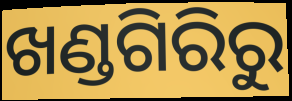
ଖଣ୍ଡଗିରିରୁ